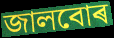
জালবোৰ